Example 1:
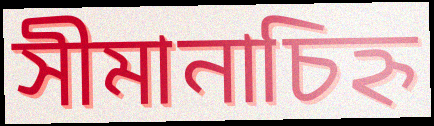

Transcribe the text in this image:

সীমানাচিহ্ন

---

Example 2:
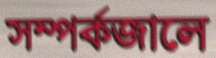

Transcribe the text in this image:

সম্পর্কজালে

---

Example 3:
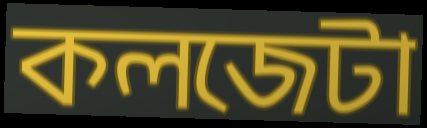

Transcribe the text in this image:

কলজেটা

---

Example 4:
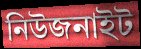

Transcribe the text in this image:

নিউজনাইট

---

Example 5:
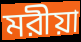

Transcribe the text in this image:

মরীয়া